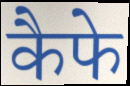
कैफे